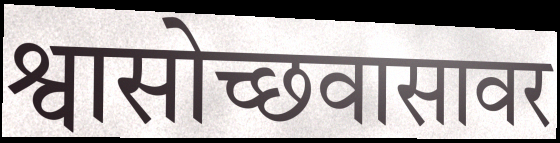
श्वासोच्छवासावर